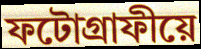
ফটোগ্ৰাফীয়ে